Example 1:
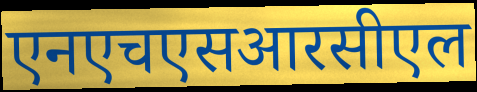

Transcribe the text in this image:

एनएचएसआरसीएल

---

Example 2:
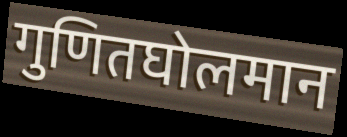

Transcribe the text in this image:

गुणितघोलमान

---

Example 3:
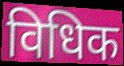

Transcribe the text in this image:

विधिक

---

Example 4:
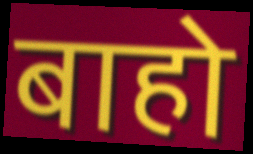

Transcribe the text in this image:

बाहो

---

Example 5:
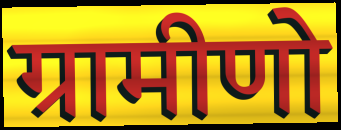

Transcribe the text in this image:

ग्रामीणो